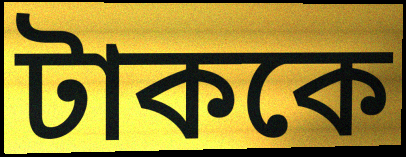
টাককে